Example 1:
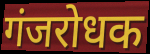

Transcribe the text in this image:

गंजरोधक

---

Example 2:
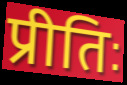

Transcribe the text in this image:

प्रीतिः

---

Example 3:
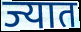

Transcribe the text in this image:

ज्यात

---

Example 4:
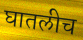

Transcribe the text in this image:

घातलीच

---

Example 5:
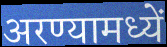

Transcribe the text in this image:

अरण्यामध्यें